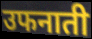
उफनाती